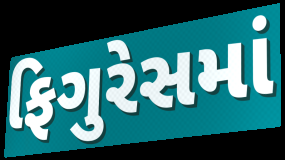
ફિગુરેસમાં